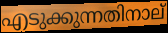
എടുക്കുന്നതിനാല്